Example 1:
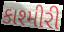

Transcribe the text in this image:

કાશ્મીરી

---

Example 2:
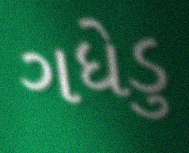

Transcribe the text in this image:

ગધેડુ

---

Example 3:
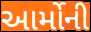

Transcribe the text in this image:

આર્મોની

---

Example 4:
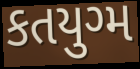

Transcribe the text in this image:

કતયુગ્મ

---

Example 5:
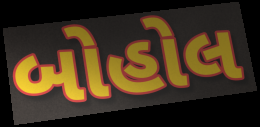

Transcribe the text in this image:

બોહોલ